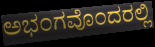
ಅಭಂಗವೊಂದರಲ್ಲಿ